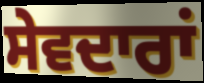
ਸੇਵਦਾਰਾਂ